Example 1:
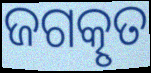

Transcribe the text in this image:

ଜଗତ୍କୃତ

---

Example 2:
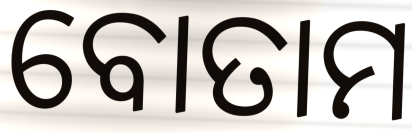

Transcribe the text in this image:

ବୋତାମ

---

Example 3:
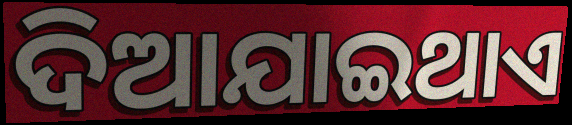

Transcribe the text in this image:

ଦିଆଯାଇଥାଏ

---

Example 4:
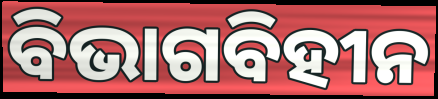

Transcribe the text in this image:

ବିଭାଗବିହୀନ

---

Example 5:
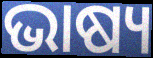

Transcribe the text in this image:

ଭାଷ୍ୟ